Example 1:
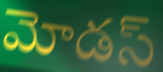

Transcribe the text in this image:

మోడస్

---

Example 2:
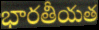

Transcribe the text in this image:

భారతీయత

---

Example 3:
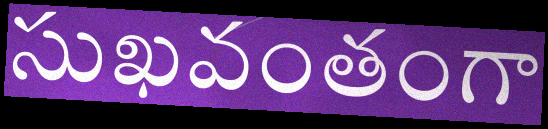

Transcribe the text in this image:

సుఖవంతంగా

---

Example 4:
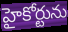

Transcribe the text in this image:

హైకోర్టును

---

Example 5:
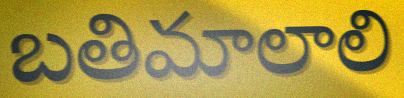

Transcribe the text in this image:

బతిమాలాలి